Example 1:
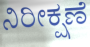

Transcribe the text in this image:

ನಿರೀಕ್ಷಣೆ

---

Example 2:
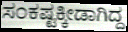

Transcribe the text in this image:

ಸಂಕಷ್ಟಕ್ಕೀಡಾಗಿದ್ದ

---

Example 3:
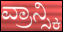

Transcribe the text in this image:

ವ್ರಾನ್ಸ್ಕಿ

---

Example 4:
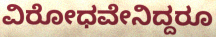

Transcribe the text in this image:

ವಿರೋಧವೇನಿದ್ದರೂ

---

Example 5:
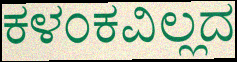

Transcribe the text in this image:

ಕಳಂಕವಿಲ್ಲದ